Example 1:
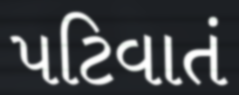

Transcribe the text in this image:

પટિવાતં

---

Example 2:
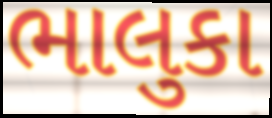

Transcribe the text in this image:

ભાલુકા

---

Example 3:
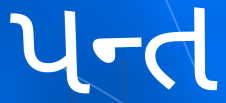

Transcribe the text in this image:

પન્ત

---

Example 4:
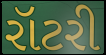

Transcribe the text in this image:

રૉટરી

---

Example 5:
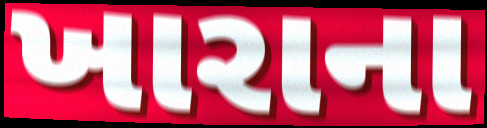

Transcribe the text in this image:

ખારાના